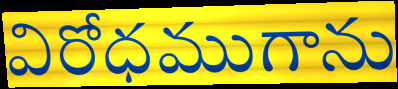
విరోధముగాను